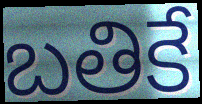
బతికే